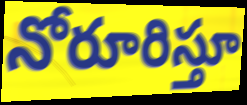
నోరూరిస్తూ